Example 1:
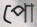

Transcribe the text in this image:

পো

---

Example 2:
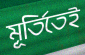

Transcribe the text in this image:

মূর্তিতেই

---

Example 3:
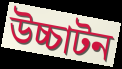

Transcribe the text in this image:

উচ্চাটন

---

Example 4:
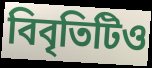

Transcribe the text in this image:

বিবৃতিটিও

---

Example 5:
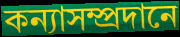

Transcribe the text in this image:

কন্যাসম্প্রদানে